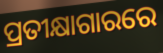
ପ୍ରତୀକ୍ଷାଗାରରେ